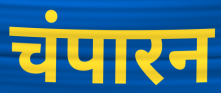
चंपारन